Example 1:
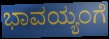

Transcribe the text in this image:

ಭಾವಯ್ಯಂಗೆ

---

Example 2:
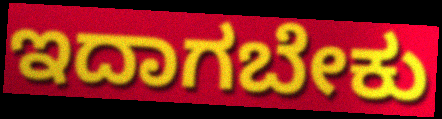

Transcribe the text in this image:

ಇದಾಗಬೇಕು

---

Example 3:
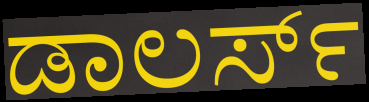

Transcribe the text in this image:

ಡಾಲರ್ಸ್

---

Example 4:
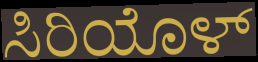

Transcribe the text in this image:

ಸಿರಿಯೊಳ್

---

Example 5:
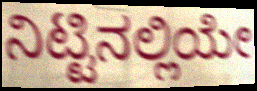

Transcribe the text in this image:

ನಿಟ್ಟಿನಲ್ಲಿಯೇ